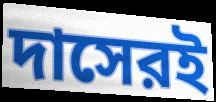
দাসেরই